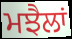
ਮਝੈਲਾਂ